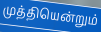
முத்தியென்றும்